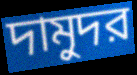
দামুদর